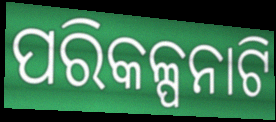
ପରିକଳ୍ପନାଟି